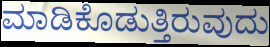
ಮಾಡಿಕೊಡುತ್ತಿರುವುದು